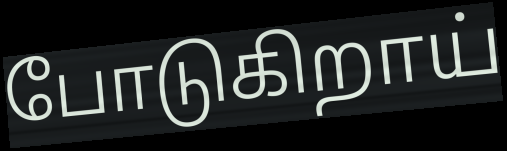
போடுகிறாய்